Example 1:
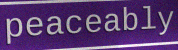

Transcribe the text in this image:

peaceably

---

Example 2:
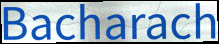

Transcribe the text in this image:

Bacharach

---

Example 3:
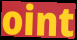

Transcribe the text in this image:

oint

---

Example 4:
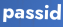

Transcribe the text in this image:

passid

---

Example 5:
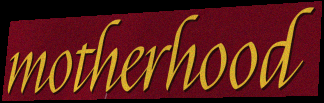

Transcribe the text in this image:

motherhood